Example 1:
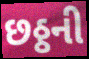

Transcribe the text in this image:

છઠ્ઠની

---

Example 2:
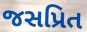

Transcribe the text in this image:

જસપ્રિત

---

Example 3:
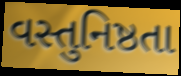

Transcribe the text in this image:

વસ્તુનિષ્ઠતા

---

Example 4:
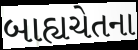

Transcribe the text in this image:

બાહ્યચેતના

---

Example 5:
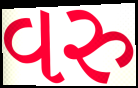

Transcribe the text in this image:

વરુ